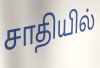
சாதியில்